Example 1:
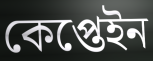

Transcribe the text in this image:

কেপ্তেইন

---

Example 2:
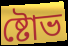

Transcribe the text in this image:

ষ্টোভ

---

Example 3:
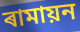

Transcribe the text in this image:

ৰামায়ন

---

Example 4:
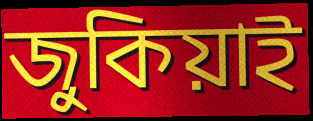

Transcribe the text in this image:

জুকিয়াই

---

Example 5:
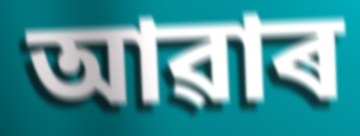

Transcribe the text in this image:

আৱাৰ